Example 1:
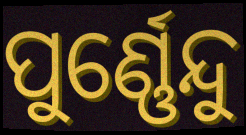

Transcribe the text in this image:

ପୁର୍ଣ୍ଣେନ୍ଦୁ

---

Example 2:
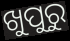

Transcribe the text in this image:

ଖୁପୁରୁ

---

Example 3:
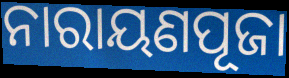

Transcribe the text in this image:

ନାରାୟଣପୂଜା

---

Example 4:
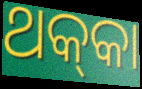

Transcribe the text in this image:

ଥକ୍‌କା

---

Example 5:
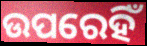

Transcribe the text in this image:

ଉପରେହିଁ